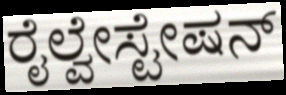
ರೈಲ್ವೇಸ್ಟೇಷನ್